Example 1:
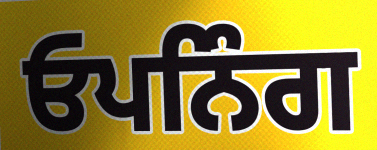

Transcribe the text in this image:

ਓਪਨਿੰਗ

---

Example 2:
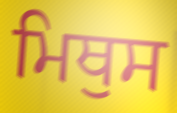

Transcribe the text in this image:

ਮਿਥੁਸ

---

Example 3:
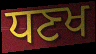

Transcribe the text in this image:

ਧਣਖ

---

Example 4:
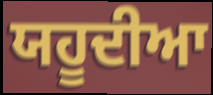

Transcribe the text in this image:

ਯਹੂਦੀਆ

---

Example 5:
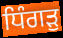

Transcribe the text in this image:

ਧਿੰਗੜੁ